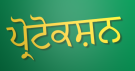
ਪ੍ਰੋਟੋਕਸ਼ਨ